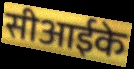
सीआईके